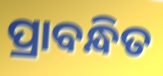
ପ୍ରାବନ୍ଧିତ